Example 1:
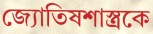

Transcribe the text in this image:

জ্যোতিষশাস্ত্রকে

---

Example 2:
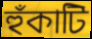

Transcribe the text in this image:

হুঁকাটি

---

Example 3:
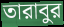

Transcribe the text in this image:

তারাবুর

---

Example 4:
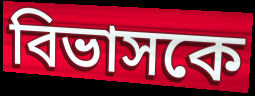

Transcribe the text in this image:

বিভাসকে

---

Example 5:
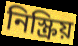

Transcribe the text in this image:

নিস্ক্রিয়